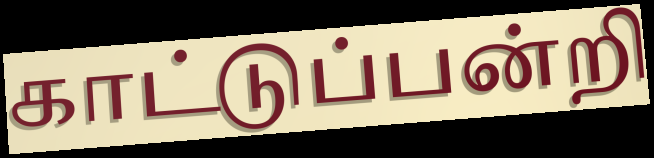
காட்டுப்பன்றி